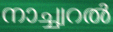
നാച്ച്വറൽ